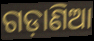
ଗଡ଼ାଣିଆ